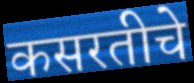
कसरतीचे